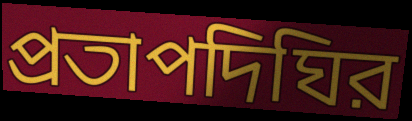
প্রতাপদিঘির